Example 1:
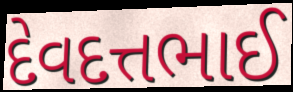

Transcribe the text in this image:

દેવદત્તભાઈ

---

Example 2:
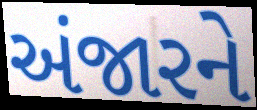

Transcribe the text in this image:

અંજારને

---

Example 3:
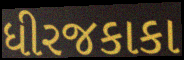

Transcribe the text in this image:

ધીરજકાકા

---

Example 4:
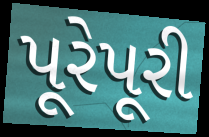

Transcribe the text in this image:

પૂરેપૂરી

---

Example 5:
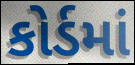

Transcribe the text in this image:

કોર્ડમાં